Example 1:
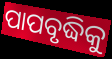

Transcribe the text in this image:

ପାପବୃଦ୍ଧିକୁ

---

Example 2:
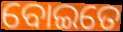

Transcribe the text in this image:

ବୋଇତେ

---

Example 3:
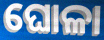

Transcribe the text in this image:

ଘୋଳା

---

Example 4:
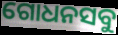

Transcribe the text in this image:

ଗୋଧନସବୁ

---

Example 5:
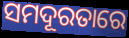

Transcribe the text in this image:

ସମଦୂରତାରେ